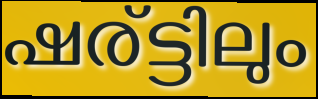
ഷര്ട്ടിലും